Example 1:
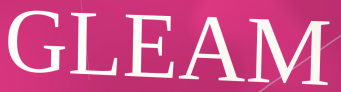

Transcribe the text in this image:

GLEAM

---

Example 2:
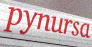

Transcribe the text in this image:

pynursa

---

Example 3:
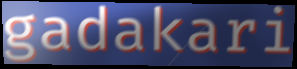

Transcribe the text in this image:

gadakari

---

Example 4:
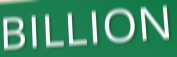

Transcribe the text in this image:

BILLION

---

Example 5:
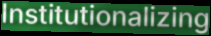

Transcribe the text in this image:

Institutionalizing